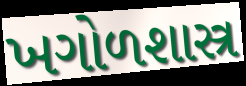
ખગોળશાસ્ત્ર